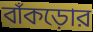
বাঁকড়োর